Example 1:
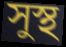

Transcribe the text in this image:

সুস্থ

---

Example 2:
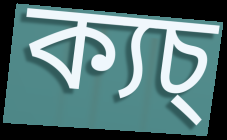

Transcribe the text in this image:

ক্যচ্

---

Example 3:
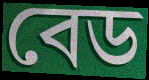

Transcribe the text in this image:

বেড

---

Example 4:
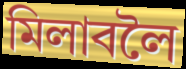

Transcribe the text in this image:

মিলাবলৈ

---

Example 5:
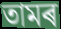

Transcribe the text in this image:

তামৰ